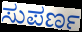
ಸುಪರ್ಣ